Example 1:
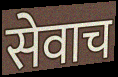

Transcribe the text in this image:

सेवाच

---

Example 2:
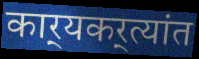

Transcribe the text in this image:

कार्यकर्त्यांत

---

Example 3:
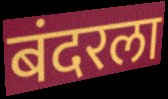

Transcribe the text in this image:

बंदरला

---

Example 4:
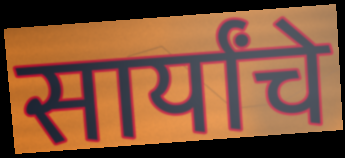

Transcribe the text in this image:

सार्यांचे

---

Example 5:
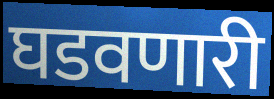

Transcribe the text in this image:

घडवणारी